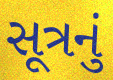
સૂત્રનું